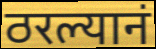
ठरल्यानं